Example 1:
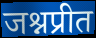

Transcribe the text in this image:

जश्नप्रीत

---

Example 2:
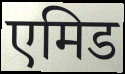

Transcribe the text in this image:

एमिड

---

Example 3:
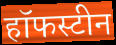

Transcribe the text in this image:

हॉफस्टीन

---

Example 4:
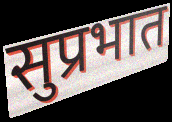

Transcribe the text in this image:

सुप्रभात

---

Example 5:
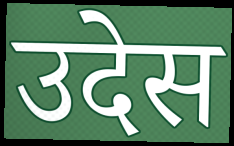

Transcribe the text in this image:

उदेस